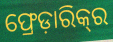
ଫ୍ରେଡ଼ାରିକ୍‍ର